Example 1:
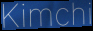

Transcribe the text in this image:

Kimchi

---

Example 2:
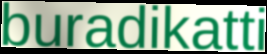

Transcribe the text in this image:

buradikatti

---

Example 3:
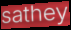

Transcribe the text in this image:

sathey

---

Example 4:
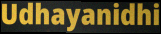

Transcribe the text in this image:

Udhayanidhi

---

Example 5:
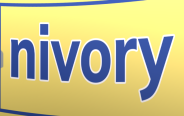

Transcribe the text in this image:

nivory